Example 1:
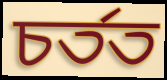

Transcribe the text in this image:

চৰ্তত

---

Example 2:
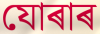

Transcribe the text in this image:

যোৰাৰ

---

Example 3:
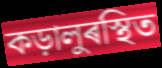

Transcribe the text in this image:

কড়ালুৰস্থিত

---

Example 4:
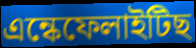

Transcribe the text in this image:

এন্কেফেলাইটিছ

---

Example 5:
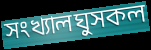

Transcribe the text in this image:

সংখ্যালঘুসকল